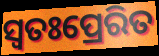
ସ୍ୱତଃପ୍ରେରିତ